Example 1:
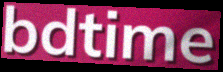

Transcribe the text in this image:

bdtime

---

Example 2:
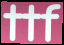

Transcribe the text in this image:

ttf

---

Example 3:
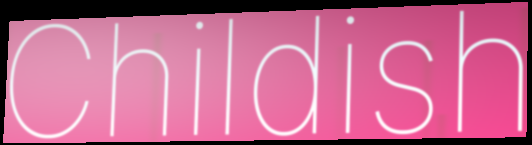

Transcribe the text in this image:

Childish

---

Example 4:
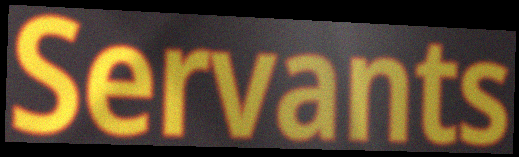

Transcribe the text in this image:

Servants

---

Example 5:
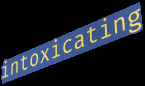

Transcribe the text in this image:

intoxicating